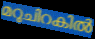
മറുചിറകിൽ